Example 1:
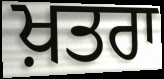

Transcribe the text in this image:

ਖ਼ਤਰਾ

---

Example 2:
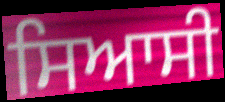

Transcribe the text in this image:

ਸਿਆਸੀ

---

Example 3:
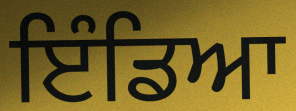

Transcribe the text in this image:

ਇੰਡਿਆ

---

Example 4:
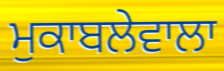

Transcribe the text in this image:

ਮੁਕਾਬਲੇਵਾਲਾ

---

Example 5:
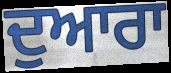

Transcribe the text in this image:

ਦੁਆਰਾ